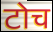
टोच